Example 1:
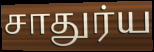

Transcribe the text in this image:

சாதுர்ய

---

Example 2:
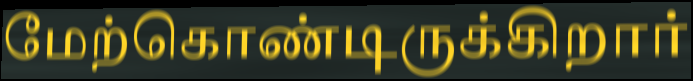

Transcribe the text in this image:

மேற்கொண்டிருக்கிறார்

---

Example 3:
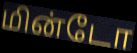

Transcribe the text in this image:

மின்டோ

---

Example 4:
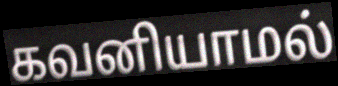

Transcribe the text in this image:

கவனியாமல்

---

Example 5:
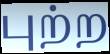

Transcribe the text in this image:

புற்ற